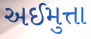
અઈમુત્તા